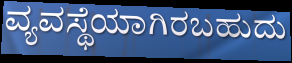
ವ್ಯವಸ್ಥೆಯಾಗಿರಬಹುದು